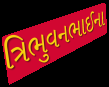
ત્રિભુવનભાઈના